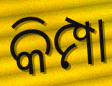
କିମ୍ପା